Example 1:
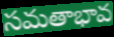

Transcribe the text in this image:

సమతాభావ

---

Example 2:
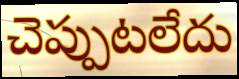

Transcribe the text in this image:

చెప్పుటలేదు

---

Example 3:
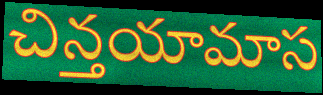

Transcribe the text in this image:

చిన్తయామాస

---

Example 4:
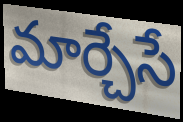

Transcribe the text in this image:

మార్చేసే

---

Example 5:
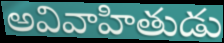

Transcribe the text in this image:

అవివాహితుడు